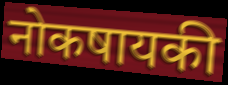
नोकषायकी